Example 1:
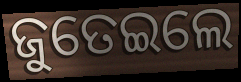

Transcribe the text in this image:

ଜୁତେଇଲେ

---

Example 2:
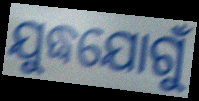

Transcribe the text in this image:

ଯୁଦ୍ଧଯୋଗୁଁ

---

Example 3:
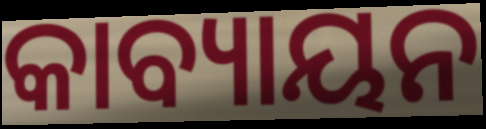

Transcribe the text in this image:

କାବ୍ୟାୟନ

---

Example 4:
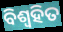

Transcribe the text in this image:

ବିଶ୍ଵହିତ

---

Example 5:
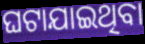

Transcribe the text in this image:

ଘଟାଯାଇଥିବା